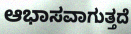
ಆಭಾಸವಾಗುತ್ತದೆ